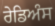
ਰੇਡਿਅੰਸ